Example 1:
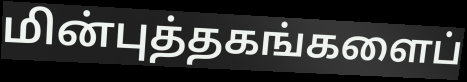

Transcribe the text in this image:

மின்புத்தகங்களைப்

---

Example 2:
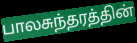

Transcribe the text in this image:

பாலசுந்தரத்தின்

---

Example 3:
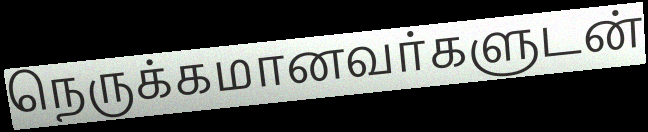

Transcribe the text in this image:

நெருக்கமானவர்களுடன்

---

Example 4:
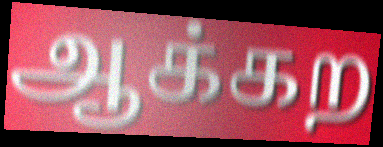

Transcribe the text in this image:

ஆக்கற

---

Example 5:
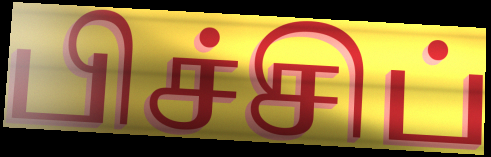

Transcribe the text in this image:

பிச்சிப்